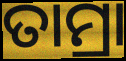
ତାମ୍ରା